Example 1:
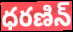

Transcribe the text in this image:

ధరణిన్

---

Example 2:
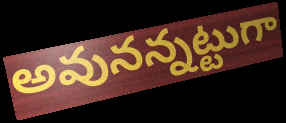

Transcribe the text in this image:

అవునన్నట్టుగా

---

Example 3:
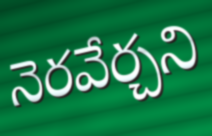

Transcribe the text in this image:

నెరవేర్చని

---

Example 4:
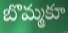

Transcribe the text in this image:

బొమ్మకూ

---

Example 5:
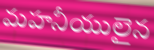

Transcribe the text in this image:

మహనీయులైన